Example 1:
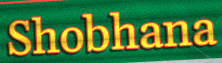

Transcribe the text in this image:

Shobhana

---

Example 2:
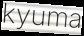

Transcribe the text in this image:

kyuma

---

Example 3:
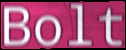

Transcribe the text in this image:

Bolt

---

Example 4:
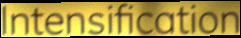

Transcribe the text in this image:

Intensification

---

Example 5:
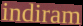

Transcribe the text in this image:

indiram